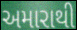
અમારાથી